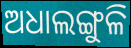
ଅଧାଲଙ୍ଗୁଳି